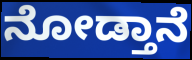
ನೋಡ್ತಾನೆ